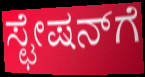
ಸ್ಟೇಷನ್‍ಗೆ